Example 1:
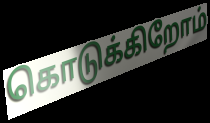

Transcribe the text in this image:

கொடுக்கிறோம்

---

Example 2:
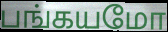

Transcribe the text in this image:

பங்கயமோ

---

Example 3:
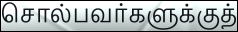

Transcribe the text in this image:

சொல்பவர்களுக்குத்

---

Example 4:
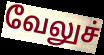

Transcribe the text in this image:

வேலுச்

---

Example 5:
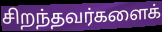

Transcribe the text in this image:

சிறந்தவர்களைக்